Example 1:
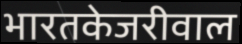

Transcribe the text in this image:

भारतकेजरीवाल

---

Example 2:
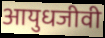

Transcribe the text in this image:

आयुधजीवी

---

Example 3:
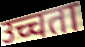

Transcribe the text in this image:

उच्चता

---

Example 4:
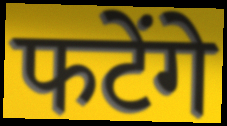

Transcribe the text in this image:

फटेंगे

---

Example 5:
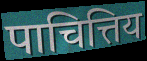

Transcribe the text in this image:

पाचित्तिय